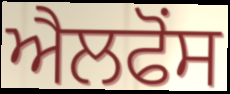
ਐਲਫੋਂਸ